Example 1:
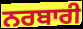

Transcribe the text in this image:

ਨਰਬਾਰੀ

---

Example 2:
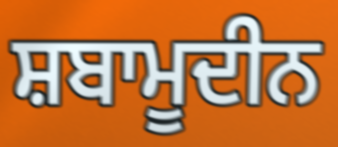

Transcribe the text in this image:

ਸ਼ਬਾਮੂਦੀਨ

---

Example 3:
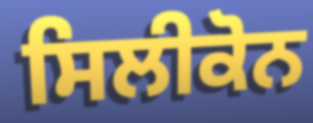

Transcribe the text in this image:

ਸਿਲੀਕੋਨ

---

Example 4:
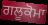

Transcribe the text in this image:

ਗਲੂਕੋਮਾ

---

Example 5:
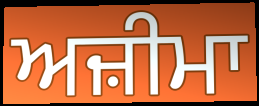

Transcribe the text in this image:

ਅਜ਼ੀਮਾ